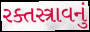
રક્તસ્ત્રાવનું